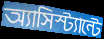
অ্যাসিস্ট্যান্টে